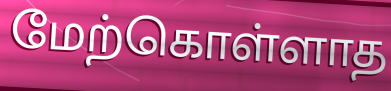
மேற்கொள்ளாத